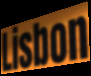
Lisbon